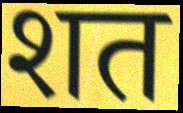
शत